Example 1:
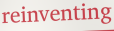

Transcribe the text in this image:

reinventing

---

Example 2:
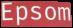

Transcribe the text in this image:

Epsom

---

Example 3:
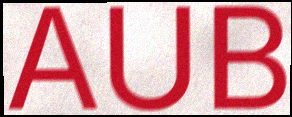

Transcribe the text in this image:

AUB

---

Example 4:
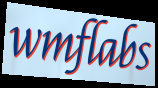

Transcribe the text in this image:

wmflabs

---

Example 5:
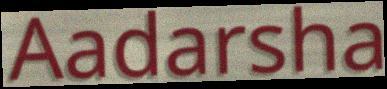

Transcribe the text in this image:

Aadarsha